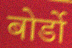
बोर्डो